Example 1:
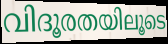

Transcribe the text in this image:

വിദൂരതയിലൂടെ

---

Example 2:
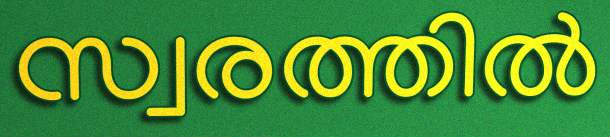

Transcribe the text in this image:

സ്വരത്തിൽ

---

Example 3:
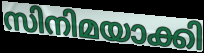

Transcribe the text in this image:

സിനിമയാക്കി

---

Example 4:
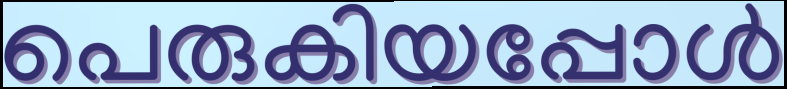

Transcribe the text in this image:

പെരുകിയപ്പോൾ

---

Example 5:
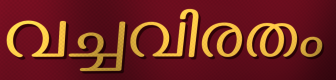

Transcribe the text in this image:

വച്ചവിരതം